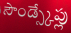
సౌండ్స్కేప్లు